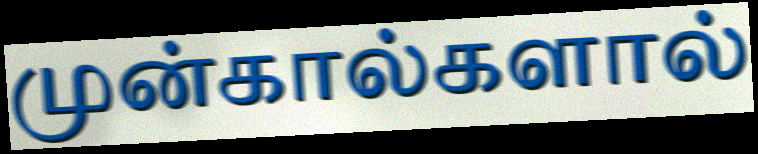
முன்கால்களால்